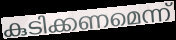
കുടിക്കണമെന്ന്